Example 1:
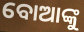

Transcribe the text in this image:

ବୋଆଙ୍କୁ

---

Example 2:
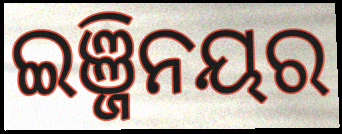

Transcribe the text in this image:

ଇଞ୍ଜିନୟର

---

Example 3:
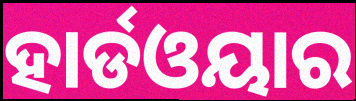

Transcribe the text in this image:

ହାର୍ଡଓୟାର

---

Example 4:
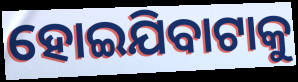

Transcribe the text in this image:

ହୋଇଯିବାଟାକୁ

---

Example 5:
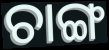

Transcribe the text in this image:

ଚାଙ୍ଗ